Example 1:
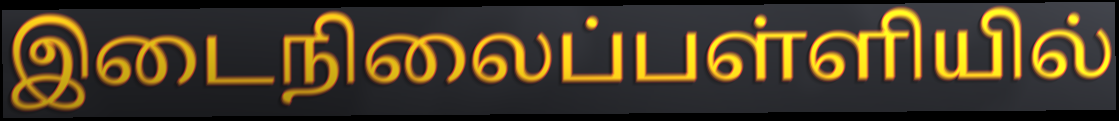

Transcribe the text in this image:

இடைநிலைப்பள்ளியில்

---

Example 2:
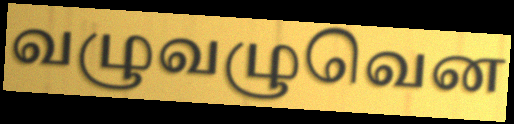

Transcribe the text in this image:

வழுவழுவென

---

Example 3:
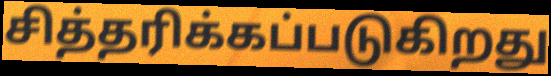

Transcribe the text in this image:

சித்தரிக்கப்படுகிறது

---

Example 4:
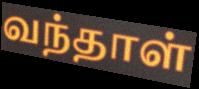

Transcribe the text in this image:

வந்தாள்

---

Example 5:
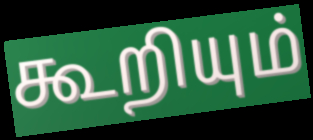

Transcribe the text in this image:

கூறியும்